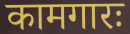
कामगारः